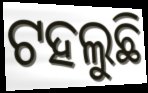
ଟହଲୁଛି